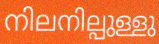
നിലനില്പുള്ളു